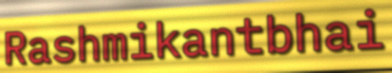
Rashmikantbhai